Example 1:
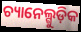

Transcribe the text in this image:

ଚ୍ୟାନେଲ୍ଗୁଡ଼ିକ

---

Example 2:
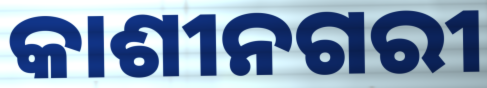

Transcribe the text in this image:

କାଶୀନଗରୀ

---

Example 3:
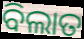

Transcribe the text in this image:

ବିଲାତ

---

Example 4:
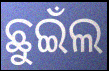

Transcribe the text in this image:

ଛୁଇଁଲ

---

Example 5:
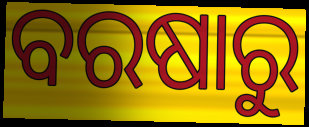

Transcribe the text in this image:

ବରଷାରୁ